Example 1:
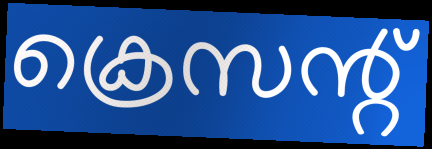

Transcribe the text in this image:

ക്രെസന്റ്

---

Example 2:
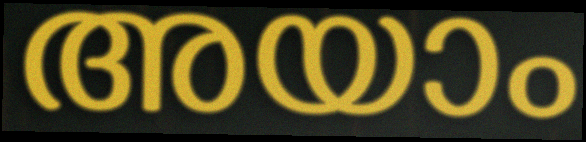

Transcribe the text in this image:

അയാം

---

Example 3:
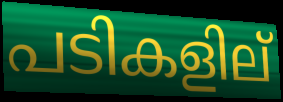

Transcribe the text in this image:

പടികളില്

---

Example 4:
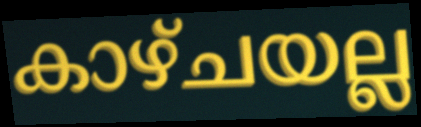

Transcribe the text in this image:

കാഴ്ചയല്ല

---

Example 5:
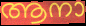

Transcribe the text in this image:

ആനാ